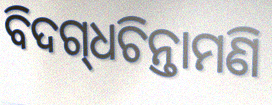
ବିଦଗ୍‌ଧଚିନ୍ତାମଣି